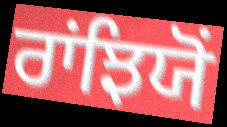
ਰਾਂਝਿਯੋਂ